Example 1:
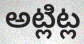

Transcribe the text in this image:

అట్లిట్ల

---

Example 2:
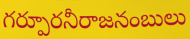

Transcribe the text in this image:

గర్పూరనీరాజనంబులు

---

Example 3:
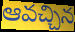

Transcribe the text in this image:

ఆవచ్చిన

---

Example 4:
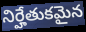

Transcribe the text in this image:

నిర్హేతుకమైన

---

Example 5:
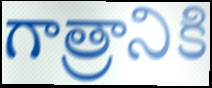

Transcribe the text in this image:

గాత్రానికి